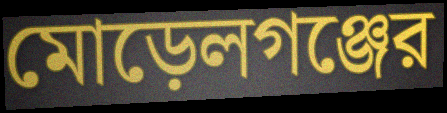
মোড়েলগঞ্জের